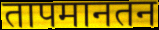
तापमानतन